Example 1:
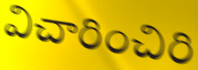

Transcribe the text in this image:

విచారించిరి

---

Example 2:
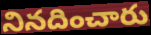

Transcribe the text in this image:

నినదించారు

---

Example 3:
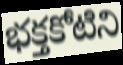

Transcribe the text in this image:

భక్తకోటిని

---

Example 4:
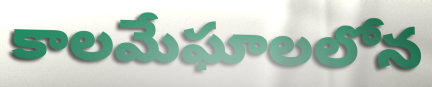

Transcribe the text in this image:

కాలమేఘాలలోన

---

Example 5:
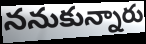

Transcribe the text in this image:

ననుకున్నారు